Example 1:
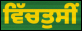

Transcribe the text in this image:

ਵਿੱਚਤੁਸੀਂ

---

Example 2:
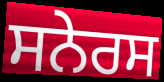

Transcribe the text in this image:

ਸਨੇਰਸ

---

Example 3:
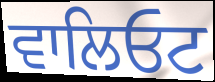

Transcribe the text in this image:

ਵਾਲਿਓਟ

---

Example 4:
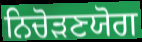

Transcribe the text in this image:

ਨਿਚੋੜਣਯੋਗ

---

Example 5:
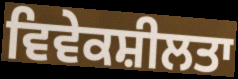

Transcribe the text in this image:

ਵਿਵੇਕਸ਼ੀਲਤਾ